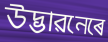
উদ্ভাৱনেৰে